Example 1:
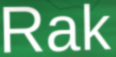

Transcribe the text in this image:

Rak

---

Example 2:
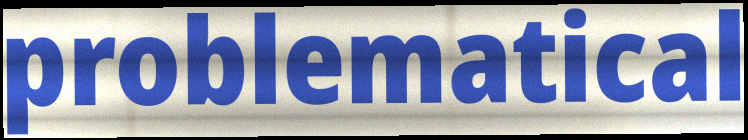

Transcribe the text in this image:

problematical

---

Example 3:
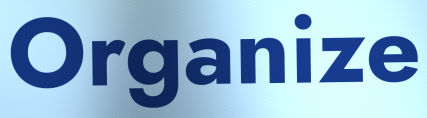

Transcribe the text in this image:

Organize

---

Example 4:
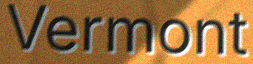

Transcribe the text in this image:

Vermont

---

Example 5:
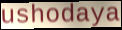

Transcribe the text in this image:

ushodaya